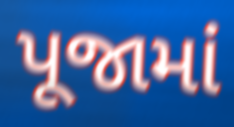
પૂજામાં